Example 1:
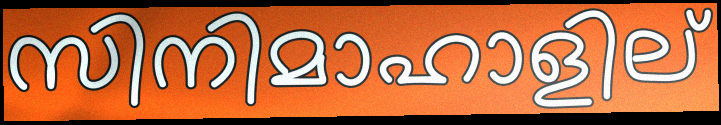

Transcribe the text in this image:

സിനിമാഹാളില്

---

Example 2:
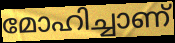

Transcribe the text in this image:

മോഹിച്ചാണ്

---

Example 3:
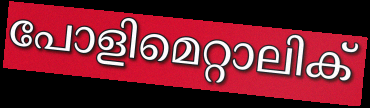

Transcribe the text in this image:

പോളിമെറ്റാലിക്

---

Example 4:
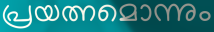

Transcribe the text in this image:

പ്രയത്നമൊന്നും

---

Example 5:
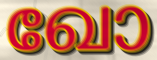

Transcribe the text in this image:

ഖോ